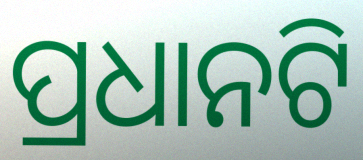
ପ୍ରଧାନଟି